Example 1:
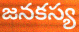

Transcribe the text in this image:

జనకస్య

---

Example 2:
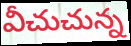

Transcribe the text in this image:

వీచుచున్న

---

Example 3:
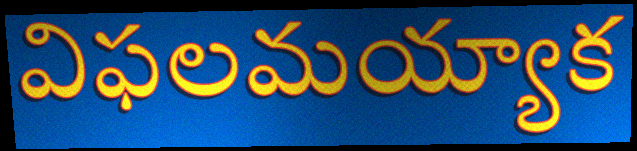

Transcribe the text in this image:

విఫలమయ్యాక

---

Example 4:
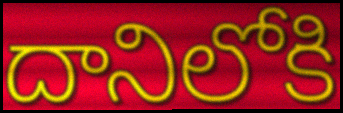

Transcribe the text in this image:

దానిలోకి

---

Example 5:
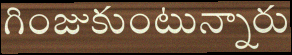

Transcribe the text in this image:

గింజుకుంటున్నారు